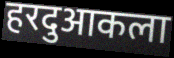
हरदुआकला